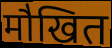
मौखित